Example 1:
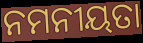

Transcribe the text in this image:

ନମନୀୟତା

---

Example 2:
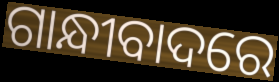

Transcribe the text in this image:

ଗାନ୍ଧୀବାଦରେ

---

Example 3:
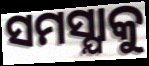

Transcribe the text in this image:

ସମସ୍ଯାକୁ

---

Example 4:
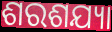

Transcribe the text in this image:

ଶରଶଯ୍ୟା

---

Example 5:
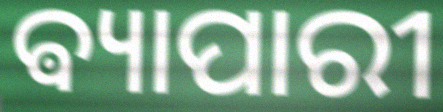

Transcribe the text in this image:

ଵ୍ୟାପାରୀ